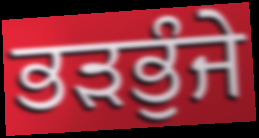
ਭੜਭੁੰਜੇ